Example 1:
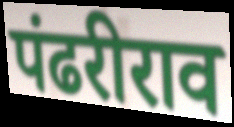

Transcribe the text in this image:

पंढरीराव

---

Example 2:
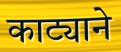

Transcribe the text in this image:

काट्याने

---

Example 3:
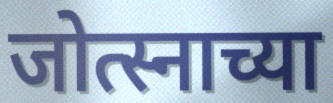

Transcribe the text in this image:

जोत्स्नाच्या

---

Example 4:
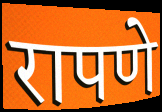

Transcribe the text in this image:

रापणे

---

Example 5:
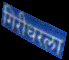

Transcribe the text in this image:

गिरीधरला